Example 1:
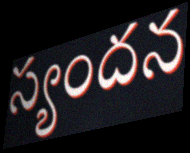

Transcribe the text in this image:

స్యందన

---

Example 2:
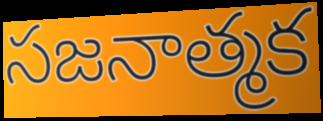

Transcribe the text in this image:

సజనాత్మక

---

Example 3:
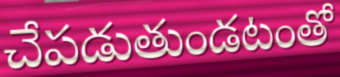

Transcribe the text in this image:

చేపడుతుండటంతో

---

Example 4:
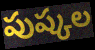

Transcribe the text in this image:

పుష్కల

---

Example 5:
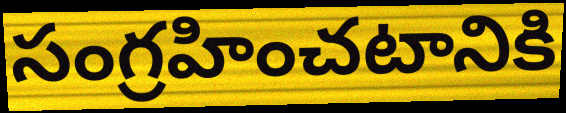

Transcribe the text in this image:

సంగ్రహించటానికి